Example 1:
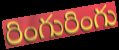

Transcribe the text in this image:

రింగురింగు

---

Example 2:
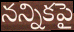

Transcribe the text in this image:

నన్నికపై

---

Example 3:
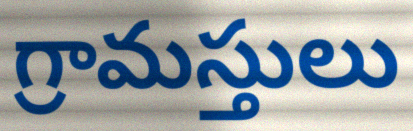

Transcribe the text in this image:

గ్రామస్తులు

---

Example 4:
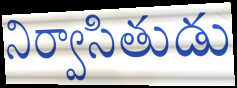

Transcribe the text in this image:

నిర్వాసితుడు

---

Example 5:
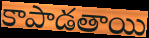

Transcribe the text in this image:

కాపాడతాయి